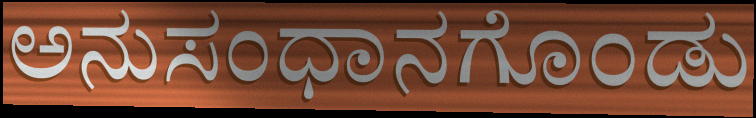
ಅನುಸಂಧಾನಗೊಂಡು